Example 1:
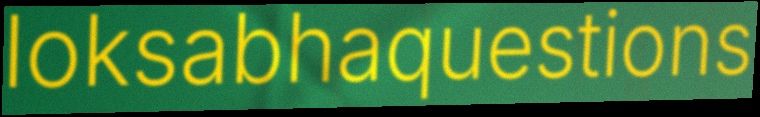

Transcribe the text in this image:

loksabhaquestions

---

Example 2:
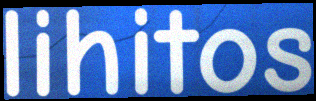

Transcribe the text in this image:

lihitos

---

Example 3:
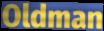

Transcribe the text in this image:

Oldman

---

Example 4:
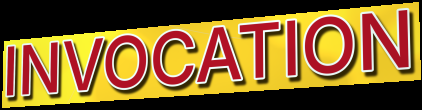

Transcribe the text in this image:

INVOCATION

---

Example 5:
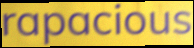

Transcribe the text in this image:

rapacious